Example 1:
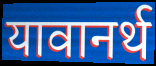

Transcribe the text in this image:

यावानर्थ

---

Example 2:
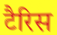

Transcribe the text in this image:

टैरिस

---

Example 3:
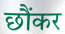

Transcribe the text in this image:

छौंकर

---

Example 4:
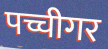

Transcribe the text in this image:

पच्चीगर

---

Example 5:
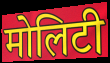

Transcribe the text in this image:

मोलिटी